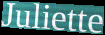
Juliette